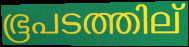
ഭൂപടത്തില്